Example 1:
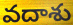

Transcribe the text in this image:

వదాశు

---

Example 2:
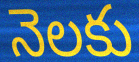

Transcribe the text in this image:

నెలకు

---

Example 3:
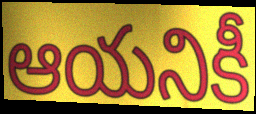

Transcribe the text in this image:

ఆయనికీ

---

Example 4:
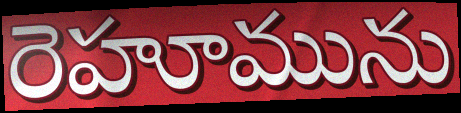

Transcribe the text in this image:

రెహూమును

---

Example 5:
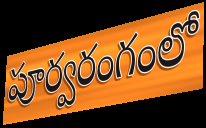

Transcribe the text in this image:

పూర్వరంగంలో